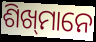
ଶିଖ୍‌ମାନେ